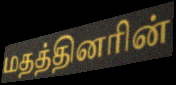
மதத்தினரின்